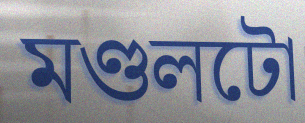
মণ্ডলটো